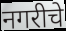
नगरीचे